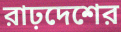
রাঢ়দেশের